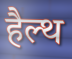
हैल्थ